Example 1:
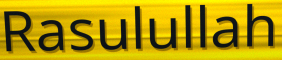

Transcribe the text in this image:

Rasulullah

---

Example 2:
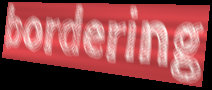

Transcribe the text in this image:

bordering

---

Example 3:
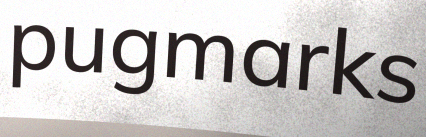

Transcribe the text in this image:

pugmarks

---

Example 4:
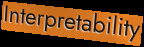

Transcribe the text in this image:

Interpretability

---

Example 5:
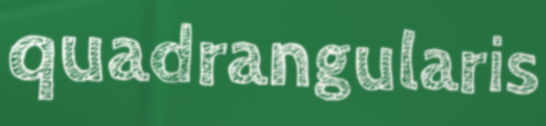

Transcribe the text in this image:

quadrangularis